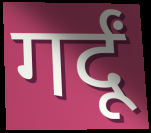
गर्दूं